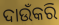
ଦାଉଁକରି